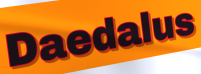
Daedalus